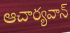
ఆచార్యవాన్